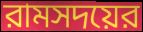
রামসদয়ের